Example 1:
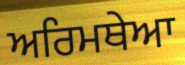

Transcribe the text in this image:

ਅਰਿਮਥੇਆ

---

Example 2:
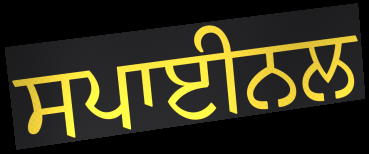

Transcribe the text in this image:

ਸਪਾਈਨਲ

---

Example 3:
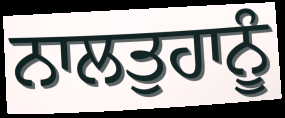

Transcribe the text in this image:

ਨਾਲਤੁਹਾਨੂੰ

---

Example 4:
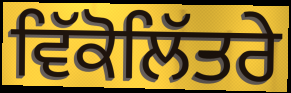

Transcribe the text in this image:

ਵਿੱਕੋਲਿੱਤਰੇ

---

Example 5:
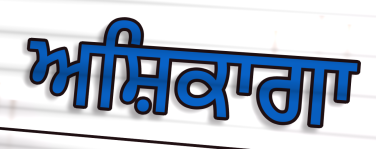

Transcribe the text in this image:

ਅਸ਼ਿਕਾਗਾ